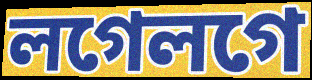
লগেলগে